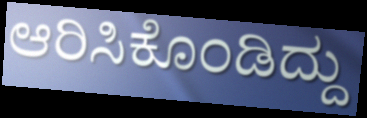
ಆರಿಸಿಕೊಂಡಿದ್ದು